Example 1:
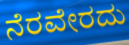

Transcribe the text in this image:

ನೆರವೇರದು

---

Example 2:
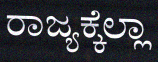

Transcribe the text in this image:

ರಾಜ್ಯಕ್ಕೆಲ್ಲಾ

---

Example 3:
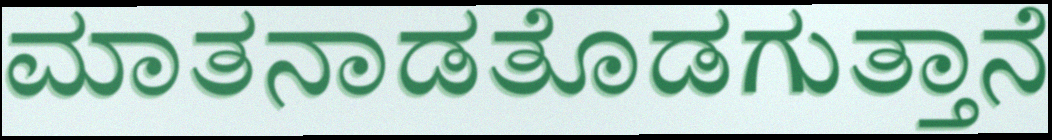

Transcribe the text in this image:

ಮಾತನಾಡತೊಡಗುತ್ತಾನೆ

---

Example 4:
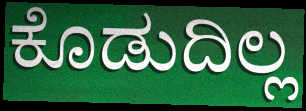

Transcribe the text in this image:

ಕೊಡುದಿಲ್ಲ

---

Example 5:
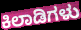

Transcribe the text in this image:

ಕಿಲಾಡಿಗಳು